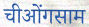
चीओंगसाम